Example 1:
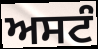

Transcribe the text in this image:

ਅਸਟੰ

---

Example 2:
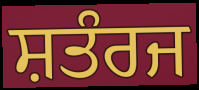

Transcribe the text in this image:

ਸ਼ਤੰਰਜ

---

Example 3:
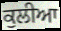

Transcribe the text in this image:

ਕੁਲੀਆ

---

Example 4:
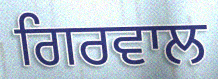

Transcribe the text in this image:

ਗਿਰਵਾਲ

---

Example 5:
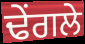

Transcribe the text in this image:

ਢੇਂਗਲੇ